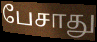
பேசாது